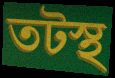
তটস্থ